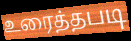
உரைத்தபடி